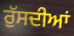
ਰੁੱਸਦੀਆਂ